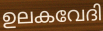
ഉലകവേദി